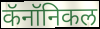
कॅनॉनिकल